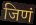
जिणं